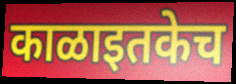
काळाइतकेच